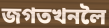
জগতখনলৈ